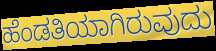
ಹೆಂಡತಿಯಾಗಿರುವುದು